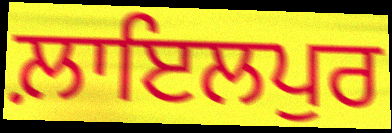
ਲ਼ਾਇਲਪੁਰ